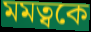
মমত্বকে